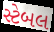
સ્ટેબલ